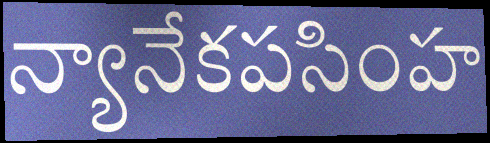
న్యానేకపసింహ